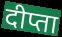
दीप्ता